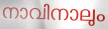
നാവിനാലും